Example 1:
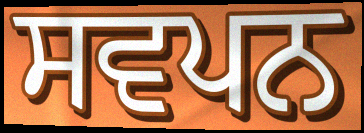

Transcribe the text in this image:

ਸਵਪਨ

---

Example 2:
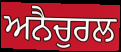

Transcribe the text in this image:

ਅਨੈਚੁਰਲ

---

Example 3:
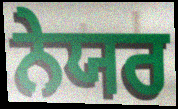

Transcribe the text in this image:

ਨੇਯਰ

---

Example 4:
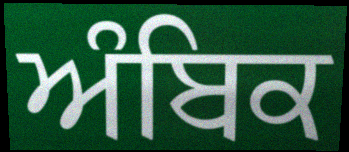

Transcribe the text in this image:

ਅੰਬਿਕ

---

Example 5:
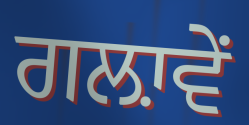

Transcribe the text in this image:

ਗਲ਼ਾਵੇਂ